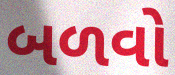
બળવો